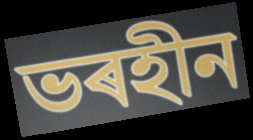
ভৰহীন